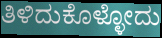
ತಿಳಿದುಕೊಳ್ಳೋದು